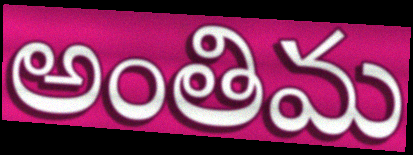
అంతిమ